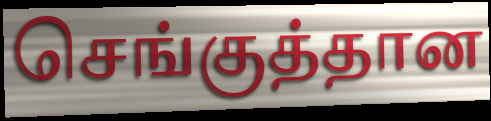
செங்குத்தான